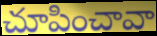
చూపించావా